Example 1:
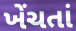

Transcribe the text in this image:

ખેંચતાં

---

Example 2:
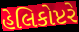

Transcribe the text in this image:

હેલિકોપ્ટરે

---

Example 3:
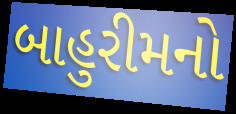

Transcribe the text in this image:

બાહુરીમનો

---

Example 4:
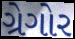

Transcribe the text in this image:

ગ્રેગોર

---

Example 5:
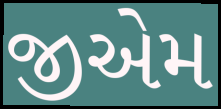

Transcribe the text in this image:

જીએમ